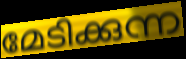
മേടിക്കുന്ന